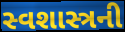
સ્વશાસ્ત્રની